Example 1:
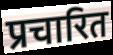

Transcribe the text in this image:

प्रचारित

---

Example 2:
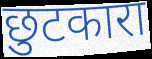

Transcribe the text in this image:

छुटकारा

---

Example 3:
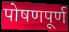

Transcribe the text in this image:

पोषणपूर्ण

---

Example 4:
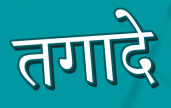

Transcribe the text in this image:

तगादे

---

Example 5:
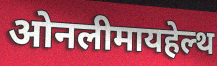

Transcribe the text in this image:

ओनलीमायहेल्थ